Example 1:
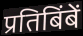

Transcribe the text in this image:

प्रतिबिंबें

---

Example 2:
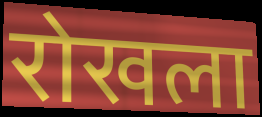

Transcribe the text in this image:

रोखला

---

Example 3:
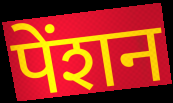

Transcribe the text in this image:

पेंशन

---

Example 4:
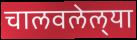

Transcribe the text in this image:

चालवलेल्या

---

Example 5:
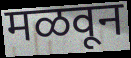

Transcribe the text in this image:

मळवून